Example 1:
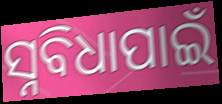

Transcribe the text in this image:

ସ୍ନବିଧାପାଇଁ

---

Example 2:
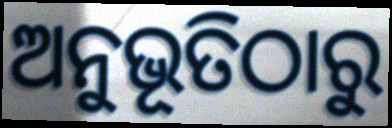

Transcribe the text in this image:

ଅନୁଭୂତିଠାରୁ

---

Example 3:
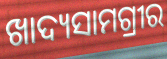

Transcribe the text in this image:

ଖାଦ୍ୟସାମଗ୍ରୀର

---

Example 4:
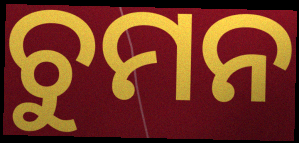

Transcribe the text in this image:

ଚୁମନ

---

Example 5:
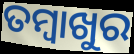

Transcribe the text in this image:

ତମ୍ବାଖୁର